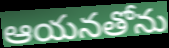
ఆయనతోను